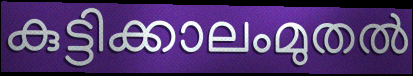
കുട്ടിക്കാലംമുതൽ